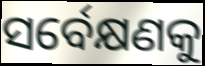
ସର୍ବେକ୍ଷଣକୁ